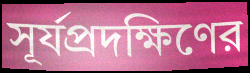
সূর্যপ্রদক্ষিণের